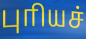
புரியச்